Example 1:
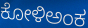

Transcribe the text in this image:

ಕೋಳಿಅಂಕ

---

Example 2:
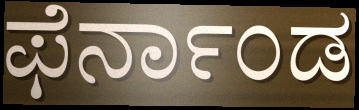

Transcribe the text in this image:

ಫೆರ್ನಾಂಡ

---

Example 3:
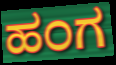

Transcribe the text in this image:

ಹಂಗ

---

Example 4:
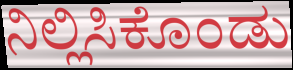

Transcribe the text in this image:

ನಿಲ್ಲಿಸಿಕೊಂಡು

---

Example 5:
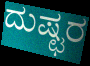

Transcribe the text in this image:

ದುಷ್ಟರ